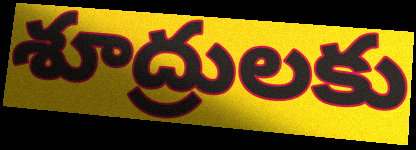
శూద్రులకు